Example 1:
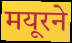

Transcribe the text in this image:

मयूरने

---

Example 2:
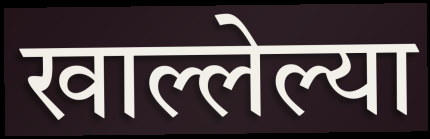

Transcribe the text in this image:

खाल्लेल्या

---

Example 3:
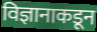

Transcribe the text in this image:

विज्ञानाकडून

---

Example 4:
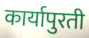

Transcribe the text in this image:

कार्यापुरती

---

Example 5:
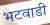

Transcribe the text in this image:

भटवाडी